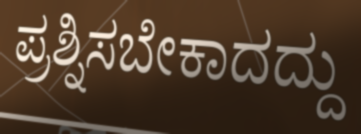
ಪ್ರಶ್ನಿಸಬೇಕಾದದ್ದು